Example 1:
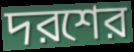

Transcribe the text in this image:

দরশের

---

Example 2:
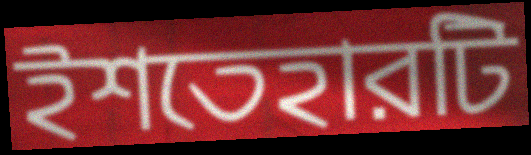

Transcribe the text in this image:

ইশতেহারটি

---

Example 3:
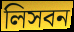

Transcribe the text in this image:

লিসবন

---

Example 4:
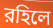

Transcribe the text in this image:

রহিলে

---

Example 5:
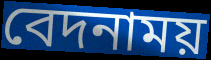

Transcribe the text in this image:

বেদনাময়